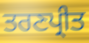
ਤਰਣਪ੍ਰੀਤ